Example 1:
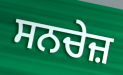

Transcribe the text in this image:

ਸਨਚੇਜ਼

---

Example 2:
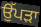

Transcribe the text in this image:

ਉੱਪੜਾ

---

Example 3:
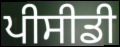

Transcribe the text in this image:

ਪੀਸੀਡੀ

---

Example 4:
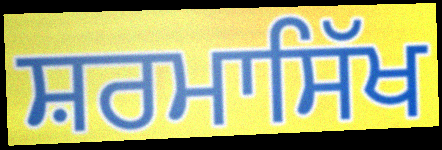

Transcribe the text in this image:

ਸ਼ਰਮਾਸਿੱਖ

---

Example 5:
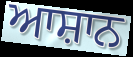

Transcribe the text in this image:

ਆਸ਼ਾਨ